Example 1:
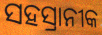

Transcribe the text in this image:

ସହସ୍ରାନୀକ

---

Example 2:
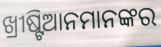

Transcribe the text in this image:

ଖ୍ରୀଷ୍ଟିଆନମାନଙ୍କର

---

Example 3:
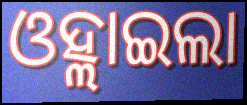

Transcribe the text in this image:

ଓହ୍ଲାଇଲା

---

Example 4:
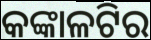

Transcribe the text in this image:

କଙ୍କାଳଟିର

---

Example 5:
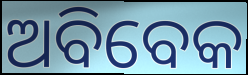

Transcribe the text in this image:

ଅବିବେକ